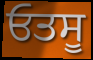
ਓਤਸੂ